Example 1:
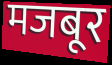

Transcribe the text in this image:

मजबूर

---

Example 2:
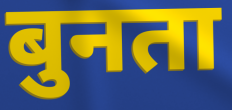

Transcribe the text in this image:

बुनता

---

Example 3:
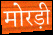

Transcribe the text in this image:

मोरड़ी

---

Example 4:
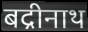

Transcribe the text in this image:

बद्रीनाथ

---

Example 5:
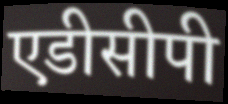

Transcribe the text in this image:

एडीसीपी